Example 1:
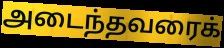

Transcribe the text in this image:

அடைந்தவரைக்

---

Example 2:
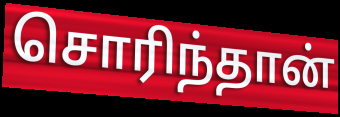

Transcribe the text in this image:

சொரிந்தான்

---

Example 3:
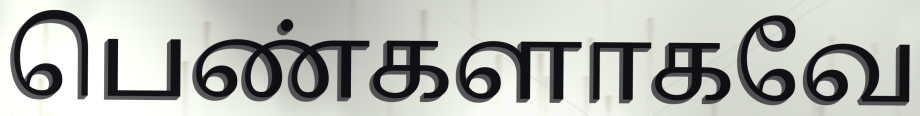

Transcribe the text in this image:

பெண்களாகவே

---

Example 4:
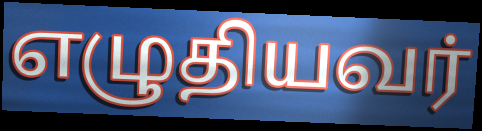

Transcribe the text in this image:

எழுதியவர்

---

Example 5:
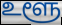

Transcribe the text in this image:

உளூ